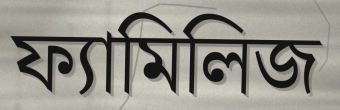
ফ্যামিলিজ